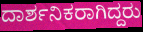
ದಾರ್ಶನಿಕರಾಗಿದ್ದರು